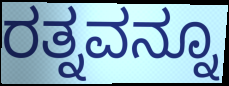
ರತ್ನವನ್ನೂ